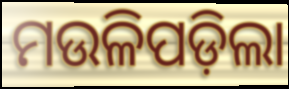
ମଉଳିପଡ଼ିଲା